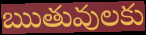
ఋతువులకు